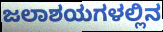
ಜಲಾಶಯಗಳಲ್ಲಿನ